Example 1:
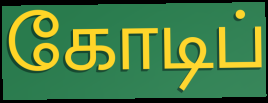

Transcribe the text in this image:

கோடிப்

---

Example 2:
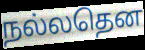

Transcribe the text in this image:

நல்லதென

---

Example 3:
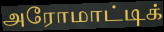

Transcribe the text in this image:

அரோமாட்டிக்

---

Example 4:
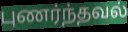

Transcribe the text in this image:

புணர்ந்தவல்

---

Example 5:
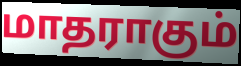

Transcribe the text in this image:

மாதராகும்